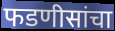
फडणीसांचा